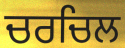
ਚਰਚਿਲ